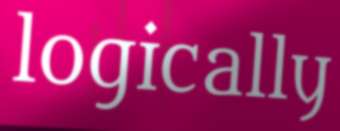
logically